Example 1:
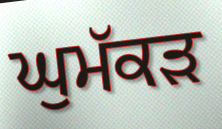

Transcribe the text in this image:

ਘੁਮੱਕਡ਼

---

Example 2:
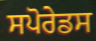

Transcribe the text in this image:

ਸਪੋਰੇਡਸ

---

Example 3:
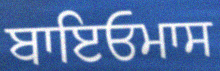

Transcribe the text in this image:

ਬਾਇਓਮਾਸ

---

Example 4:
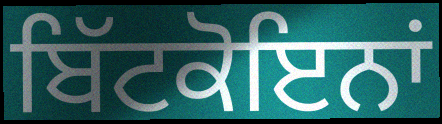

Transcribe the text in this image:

ਬਿੱਟਕੋਇਨਾਂ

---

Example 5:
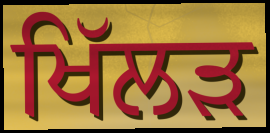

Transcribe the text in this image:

ਖਿੱਲੜ